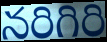
నరిగిరి